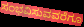
ಸಂಭವಿಸುವವರೆಗೂ